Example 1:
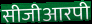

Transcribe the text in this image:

सीजीआरपी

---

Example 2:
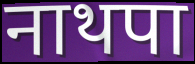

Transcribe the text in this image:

नाथपा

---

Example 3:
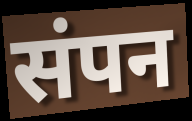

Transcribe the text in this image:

संपन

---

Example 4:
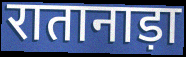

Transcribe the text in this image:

रातानाड़ा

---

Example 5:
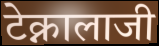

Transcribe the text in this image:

टेक्नालाजी